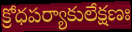
క్రోధపర్యాకులేక్షణః